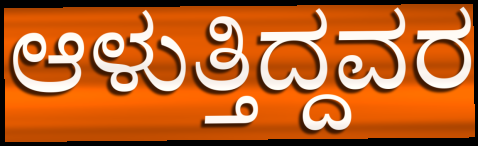
ಆಳುತ್ತಿದ್ದವರ